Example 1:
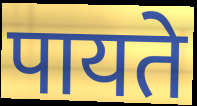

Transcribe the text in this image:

पायते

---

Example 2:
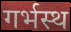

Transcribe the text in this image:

गर्भस्‍थ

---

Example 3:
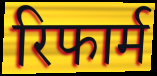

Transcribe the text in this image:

रिफार्म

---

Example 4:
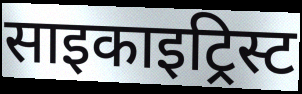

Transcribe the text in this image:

साइकाइट्रिस्ट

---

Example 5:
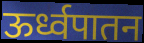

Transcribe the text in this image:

ऊर्ध्वपातन